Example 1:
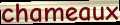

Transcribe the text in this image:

chameaux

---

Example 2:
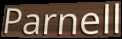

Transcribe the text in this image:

Parnell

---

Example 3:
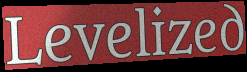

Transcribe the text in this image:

Levelized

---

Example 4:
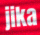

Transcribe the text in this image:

jika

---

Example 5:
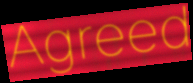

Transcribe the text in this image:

Agreed